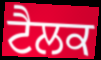
ਟੈਲਕ